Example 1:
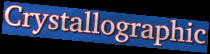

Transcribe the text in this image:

Crystallographic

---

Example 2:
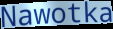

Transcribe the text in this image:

Nawotka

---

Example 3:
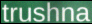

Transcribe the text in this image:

trushna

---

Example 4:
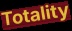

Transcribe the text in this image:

Totality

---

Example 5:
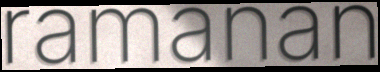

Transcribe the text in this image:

ramanan